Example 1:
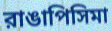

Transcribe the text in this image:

রাঙাপিসিমা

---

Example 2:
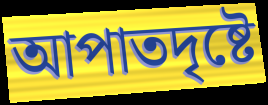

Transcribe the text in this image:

আপাতদৃষ্টে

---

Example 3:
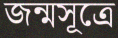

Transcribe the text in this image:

জন্মসূত্রে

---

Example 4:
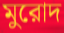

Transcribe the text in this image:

মুরোদ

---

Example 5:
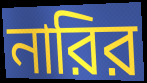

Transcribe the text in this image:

নারির